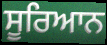
ਸੂਰਿਆਨ